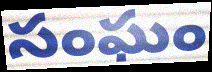
సంఘం